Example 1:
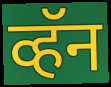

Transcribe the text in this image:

व्हॅन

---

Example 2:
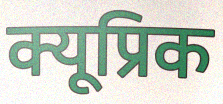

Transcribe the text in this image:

क्यूप्रिक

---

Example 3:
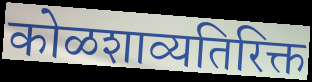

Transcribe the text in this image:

कोळशाव्यतिरिक्त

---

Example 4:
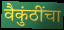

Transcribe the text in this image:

वैकुंठींचा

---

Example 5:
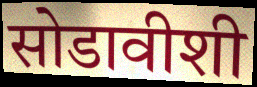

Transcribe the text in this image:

सोडावीशी